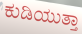
ಕುಡಿಯುತ್ತಾ